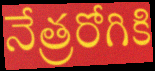
నేత్రరోగికి